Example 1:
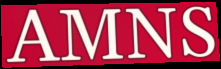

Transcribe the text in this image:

AMNS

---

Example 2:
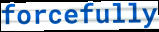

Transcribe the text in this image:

forcefully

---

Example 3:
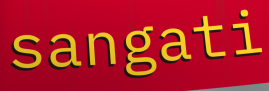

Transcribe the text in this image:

sangati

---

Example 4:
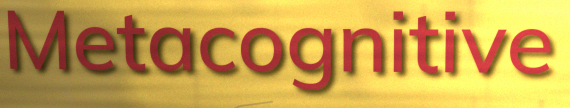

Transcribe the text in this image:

Metacognitive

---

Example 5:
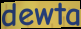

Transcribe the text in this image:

dewta